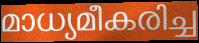
മാധ്യമീകരിച്ച